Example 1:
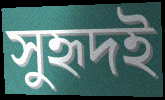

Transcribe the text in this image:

সুহৃদই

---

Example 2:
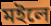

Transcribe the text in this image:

মইলে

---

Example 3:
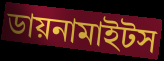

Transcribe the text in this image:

ডায়নামাইটস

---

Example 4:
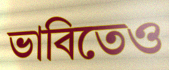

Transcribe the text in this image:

ভাবিতেও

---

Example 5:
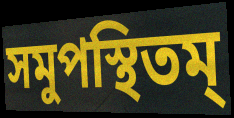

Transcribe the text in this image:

সমুপস্থিতম্